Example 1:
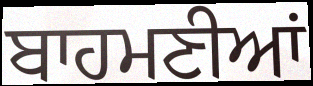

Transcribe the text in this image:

ਬਾਹਮਣੀਆਂ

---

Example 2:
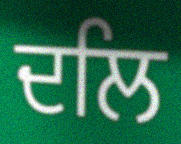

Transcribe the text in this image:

ਦਲਿ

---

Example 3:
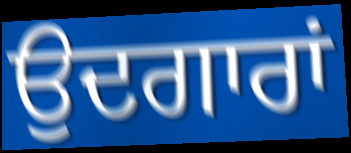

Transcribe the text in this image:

ਉਦਗਾਰਾਂ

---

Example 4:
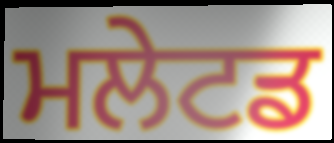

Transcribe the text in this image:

ਮਲੇਟਡ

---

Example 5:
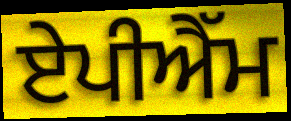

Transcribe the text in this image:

ਏਪੀਐੱਮ